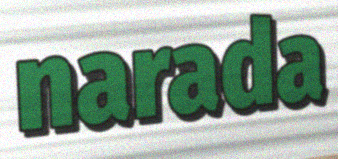
narada